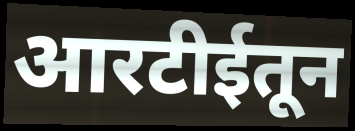
आरटीईतून